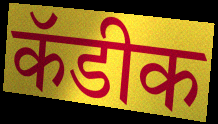
कॅडीक